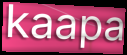
kaapa